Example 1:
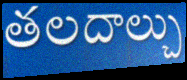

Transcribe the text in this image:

తలదాల్చు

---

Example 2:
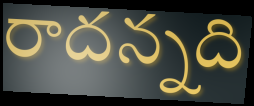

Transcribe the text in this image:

రాదన్నది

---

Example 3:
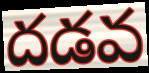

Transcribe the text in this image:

దడవ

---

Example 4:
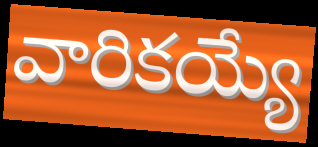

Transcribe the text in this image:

వారికయ్యే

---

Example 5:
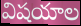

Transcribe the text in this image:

విషయాల